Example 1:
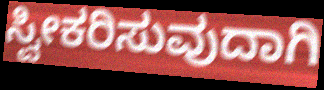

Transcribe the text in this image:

ಸ್ವೀಕರಿಸುವುದಾಗಿ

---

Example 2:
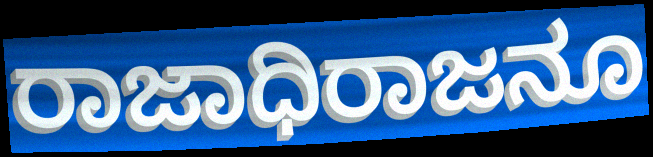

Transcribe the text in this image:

ರಾಜಾಧಿರಾಜನೂ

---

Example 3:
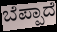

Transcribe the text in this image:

ಬೆಪ್ಪಾದೆ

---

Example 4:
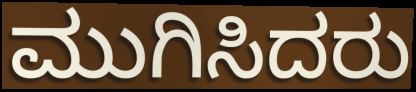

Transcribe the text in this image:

ಮುಗಿಸಿದರು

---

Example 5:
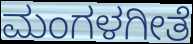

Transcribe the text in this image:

ಮಂಗಳಗೀತೆ